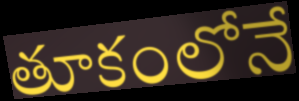
తూకంలోనే